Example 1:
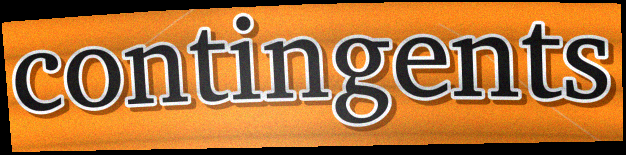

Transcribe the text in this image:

contingents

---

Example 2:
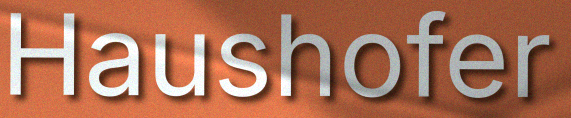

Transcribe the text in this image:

Haushofer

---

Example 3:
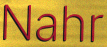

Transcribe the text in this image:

Nahr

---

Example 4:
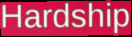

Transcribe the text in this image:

Hardship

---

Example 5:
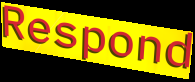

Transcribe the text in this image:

Respond